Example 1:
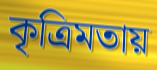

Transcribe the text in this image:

কৃত্রিমতায়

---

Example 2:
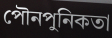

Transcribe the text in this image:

পৌনপুনিকতা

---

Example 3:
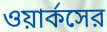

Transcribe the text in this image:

ওয়ার্কসের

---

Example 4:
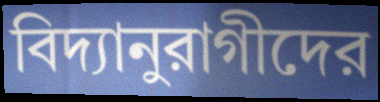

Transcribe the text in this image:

বিদ্যানুরাগীদের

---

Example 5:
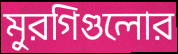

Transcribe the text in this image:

মুরগিগুলোর